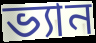
ভ্যান